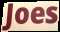
Joes